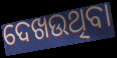
ଦେଖଉଥିବା